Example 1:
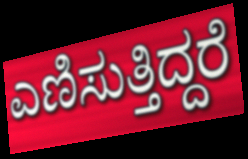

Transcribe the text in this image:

ಎಣಿಸುತ್ತಿದ್ದರೆ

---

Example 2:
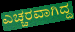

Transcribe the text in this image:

ಎಚ್ಚರವಾಗಿದ್ದ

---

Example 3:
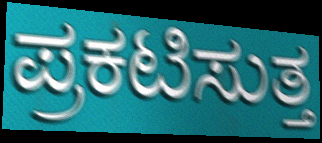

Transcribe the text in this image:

ಪ್ರಕಟಿಸುತ್ತ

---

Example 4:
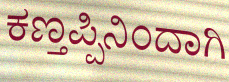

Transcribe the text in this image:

ಕಣ್ತಪ್ಪಿನಿಂದಾಗಿ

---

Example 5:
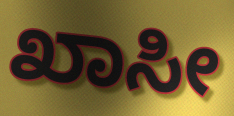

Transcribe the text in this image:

ಖಾಸೀ